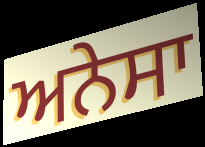
ਅਨੇਸਾ